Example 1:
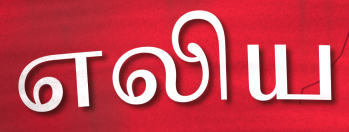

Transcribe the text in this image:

எலிய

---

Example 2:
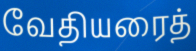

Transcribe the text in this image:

வேதியரைத்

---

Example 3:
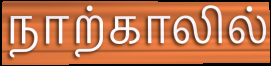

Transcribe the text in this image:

நாற்காலில்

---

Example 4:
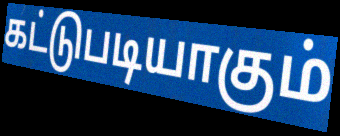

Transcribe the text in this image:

கட்டுபடியாகும்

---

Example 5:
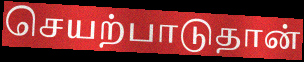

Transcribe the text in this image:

செயற்பாடுதான்